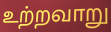
உற்றவாறு